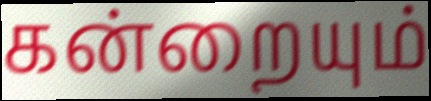
கன்றையும்